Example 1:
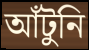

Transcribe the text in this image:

আঁটুনি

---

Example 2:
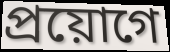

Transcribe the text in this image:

প্রয়োগে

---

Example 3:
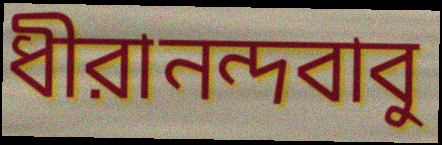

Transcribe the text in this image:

ধীরানন্দবাবু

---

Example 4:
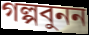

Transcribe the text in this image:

গল্পবুনন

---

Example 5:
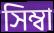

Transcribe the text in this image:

সিম্বা